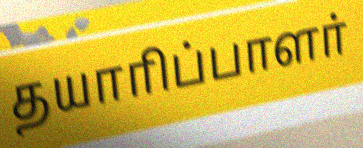
தயாரிப்பாளர்